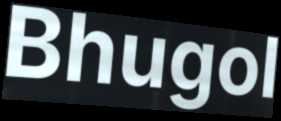
Bhugol